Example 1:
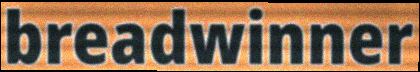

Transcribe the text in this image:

breadwinner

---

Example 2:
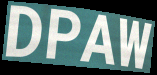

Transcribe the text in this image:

DPAW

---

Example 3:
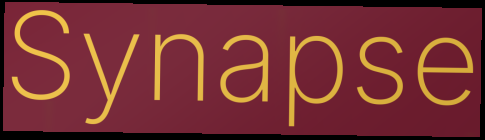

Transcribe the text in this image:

Synapse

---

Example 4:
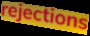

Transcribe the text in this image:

rejections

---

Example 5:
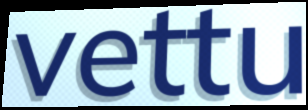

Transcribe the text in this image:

vettu